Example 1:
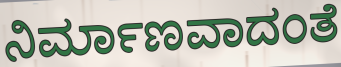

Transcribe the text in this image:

ನಿರ್ಮಾಣವಾದಂತೆ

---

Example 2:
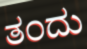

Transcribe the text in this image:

ತಂದು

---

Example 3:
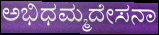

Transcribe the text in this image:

ಅಭಿಧಮ್ಮದೇಸನಾ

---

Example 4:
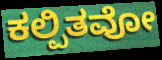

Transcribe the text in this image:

ಕಲ್ಪಿತವೋ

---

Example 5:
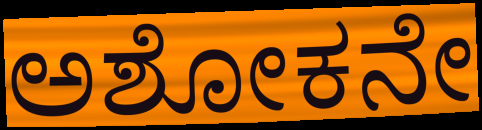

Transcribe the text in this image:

ಅಶೋಕನೇ